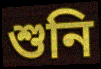
শুনি